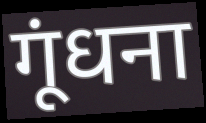
गूंधना